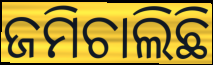
ଜମିଚାଲିଛି